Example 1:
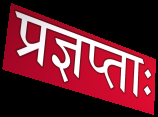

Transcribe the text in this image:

प्रज्ञप्ताः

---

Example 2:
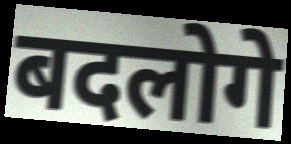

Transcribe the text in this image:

बदलोगे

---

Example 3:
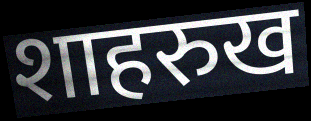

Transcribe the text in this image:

शाहरुख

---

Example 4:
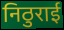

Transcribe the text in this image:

निठुराई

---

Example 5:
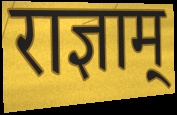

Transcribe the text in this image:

राज्ञाम्